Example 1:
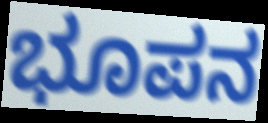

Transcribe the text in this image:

ಭೂಪನ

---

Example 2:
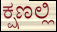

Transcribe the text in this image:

ಕ್ಷಣಲ್ಲಿ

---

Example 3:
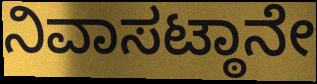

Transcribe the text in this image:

ನಿವಾಸಟ್ಠಾನೇ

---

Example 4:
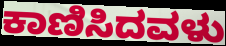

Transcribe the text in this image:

ಕಾಣಿಸಿದವಳು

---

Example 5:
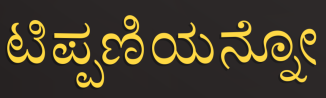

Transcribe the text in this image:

ಟಿಪ್ಪಣಿಯನ್ನೋ